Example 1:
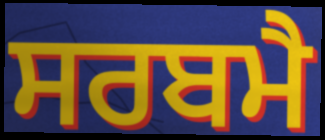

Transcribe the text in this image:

ਸਰਬਮੈ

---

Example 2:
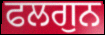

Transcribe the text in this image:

ਫਲਗੁਨ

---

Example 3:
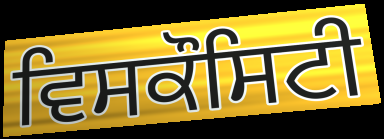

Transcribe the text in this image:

ਵਿਸਕੌਸਿਟੀ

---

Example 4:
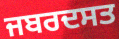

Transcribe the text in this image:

ਜਬਰਦਸਤ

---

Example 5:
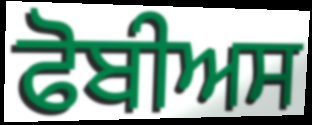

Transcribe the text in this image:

ਫੋਬੀਅਸ